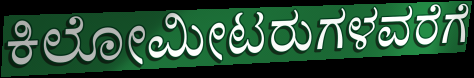
ಕಿಲೋಮೀಟರುಗಳವರೆಗೆ